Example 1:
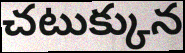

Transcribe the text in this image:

చటుక్కున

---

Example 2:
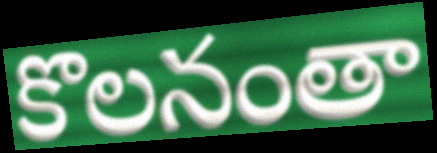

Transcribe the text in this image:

కొలనంతా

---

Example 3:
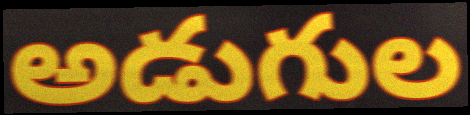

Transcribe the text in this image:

అడుగుల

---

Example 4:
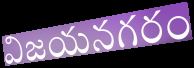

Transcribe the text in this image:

విజయనగరం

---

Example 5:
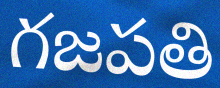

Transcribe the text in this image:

గజపతి